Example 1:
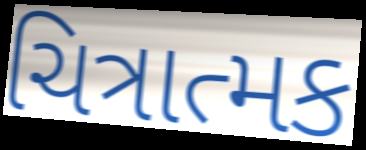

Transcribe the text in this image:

ચિત્રાત્મક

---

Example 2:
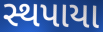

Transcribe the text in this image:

સ્થપાયા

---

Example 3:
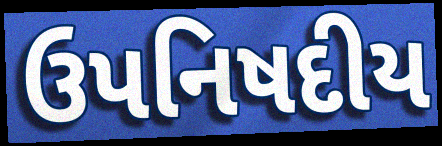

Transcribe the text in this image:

ઉપનિષદીય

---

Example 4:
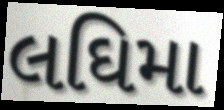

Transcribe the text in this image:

લઘિમા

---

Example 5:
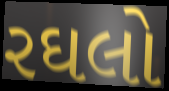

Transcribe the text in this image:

રઘલો